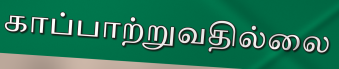
காப்பாற்றுவதில்லை